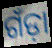
ଗଁଡ଼ା